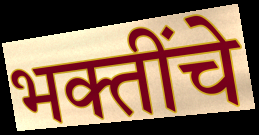
भक्तींचे